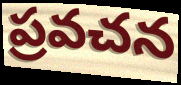
ప్రవచన